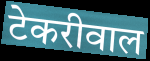
टेकरीवाल